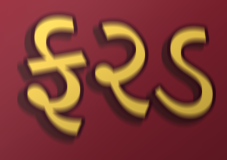
ફરડ